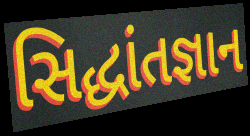
સિદ્ધાંતજ્ઞાન